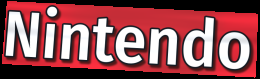
Nintendo